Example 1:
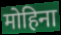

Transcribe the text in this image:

मोहिना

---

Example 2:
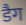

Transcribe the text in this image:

डैग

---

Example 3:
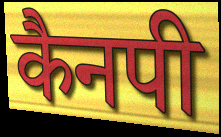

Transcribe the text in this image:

कैनपी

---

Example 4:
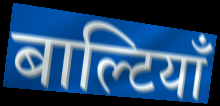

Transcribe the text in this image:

बाल्टियाँ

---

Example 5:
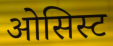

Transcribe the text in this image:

ओसिस्ट